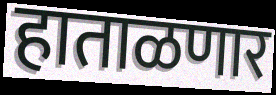
हाताळणार